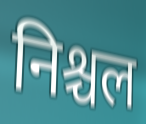
निश्चल